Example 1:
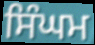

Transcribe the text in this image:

ਸਿੰਘਮ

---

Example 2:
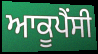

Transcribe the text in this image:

ਆਕੂਪੈਂਸੀ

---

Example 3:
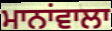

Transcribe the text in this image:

ਮਾਨਾਂਵਾਲਾ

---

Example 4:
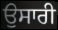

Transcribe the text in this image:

ਉਸਾਰੀ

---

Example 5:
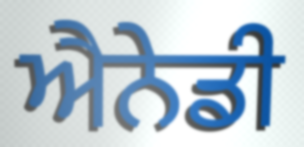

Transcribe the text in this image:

ਐਨੇਡੀ